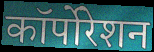
कॉर्पोरेशन